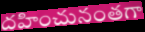
దహించునంతగా